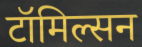
टॉमिल्सन